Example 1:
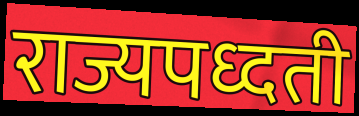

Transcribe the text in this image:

राज्यपध्दती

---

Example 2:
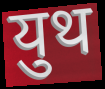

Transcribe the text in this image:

युथ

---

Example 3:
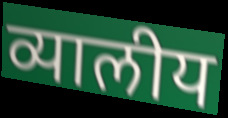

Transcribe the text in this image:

व्यालीय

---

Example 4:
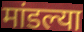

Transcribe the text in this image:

मांडल्या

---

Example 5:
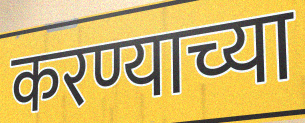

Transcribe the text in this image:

करण्याच्या